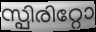
സ്പിരിറ്റോ